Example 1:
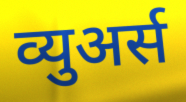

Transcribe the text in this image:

व्युअर्स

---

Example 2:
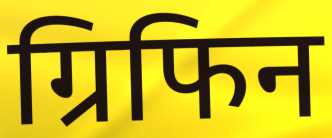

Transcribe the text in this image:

ग्रिफिन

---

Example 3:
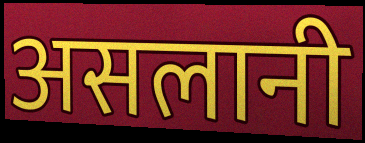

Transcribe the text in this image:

असलानी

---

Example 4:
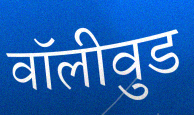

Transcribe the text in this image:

वॉलीवुड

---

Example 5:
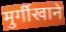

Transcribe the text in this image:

मुर्गीखाने